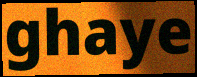
ghaye